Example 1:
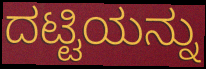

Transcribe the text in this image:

ದಟ್ಟಿಯನ್ನು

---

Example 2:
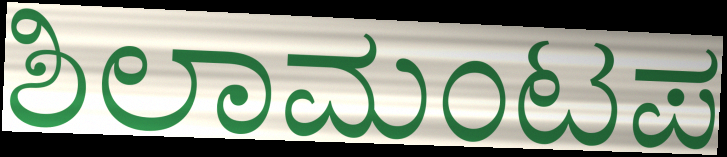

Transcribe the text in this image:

ಶಿಲಾಮಂಟಪ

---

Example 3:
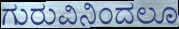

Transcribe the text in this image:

ಗುರುವಿನಿಂದಲೂ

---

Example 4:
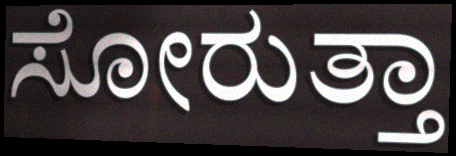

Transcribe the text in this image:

ಸೋರುತ್ತಾ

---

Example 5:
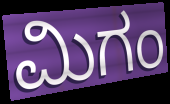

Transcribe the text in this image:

ಮಿಗಂ